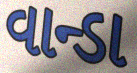
વાન્ડા